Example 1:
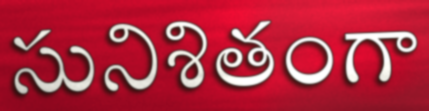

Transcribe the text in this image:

సునిశితంగా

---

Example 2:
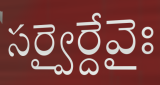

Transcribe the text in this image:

సర్వైర్దేవైః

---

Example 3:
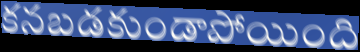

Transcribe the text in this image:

కనబడకుండాపోయింది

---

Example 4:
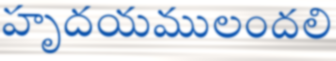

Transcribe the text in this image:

హృదయములందలి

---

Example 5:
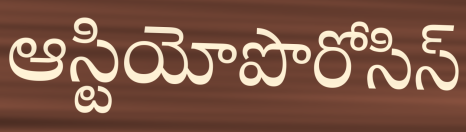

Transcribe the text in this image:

ఆస్టియోపొరోసిస్